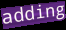
adding